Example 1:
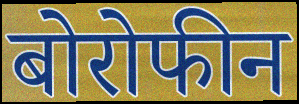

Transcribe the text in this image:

बोरोफीन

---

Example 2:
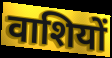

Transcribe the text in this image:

वाशियों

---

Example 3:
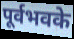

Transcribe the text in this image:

पूर्वभवके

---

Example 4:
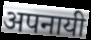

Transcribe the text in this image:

अपनायी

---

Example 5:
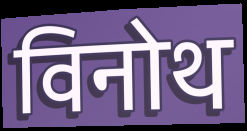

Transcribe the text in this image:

विनोथ